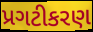
પ્રગટીકરણ